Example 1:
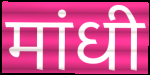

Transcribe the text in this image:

मांधी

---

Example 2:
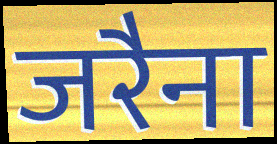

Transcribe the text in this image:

जरैना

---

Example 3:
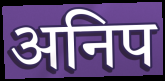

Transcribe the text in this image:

अनिप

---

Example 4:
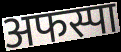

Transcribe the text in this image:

अफस्पा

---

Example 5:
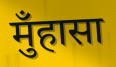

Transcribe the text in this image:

मुँहासा